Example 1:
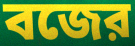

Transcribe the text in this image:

বজের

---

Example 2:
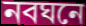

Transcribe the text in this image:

নবঘনে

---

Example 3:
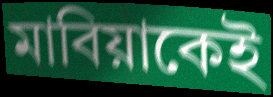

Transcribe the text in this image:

মাবিয়াকেই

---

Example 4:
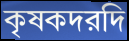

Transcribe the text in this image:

কৃষকদরদি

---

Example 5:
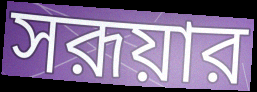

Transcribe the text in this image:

সরূয়ার